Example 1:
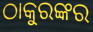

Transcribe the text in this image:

ଠାକୁରଙ୍କର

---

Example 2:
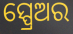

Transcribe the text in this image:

ସ୍ପ୍ରେଅର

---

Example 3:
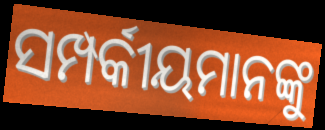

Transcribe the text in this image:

ସମ୍ପର୍କୀୟମାନଙ୍କୁ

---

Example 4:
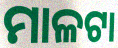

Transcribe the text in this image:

ମାଳଟା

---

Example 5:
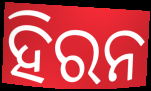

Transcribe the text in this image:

ହିରନ